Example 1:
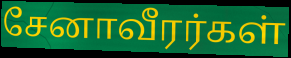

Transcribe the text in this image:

சேனாவீரர்கள்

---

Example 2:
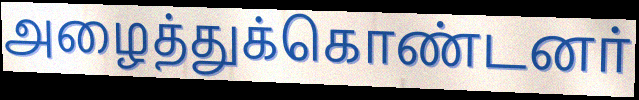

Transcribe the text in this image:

அழைத்துக்கொண்டனர்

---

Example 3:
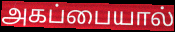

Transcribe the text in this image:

அகப்பையால்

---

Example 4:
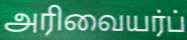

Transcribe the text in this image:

அரிவையர்ப்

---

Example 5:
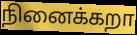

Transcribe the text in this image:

நினைக்கறா